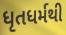
ધૃતધર્મથી